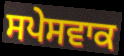
ਸਪੇਸਵਾਕ